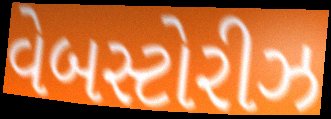
વેબસ્ટોરીઝ